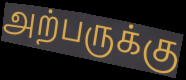
அற்பருக்கு